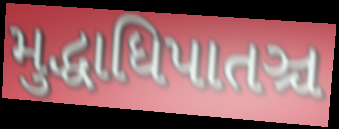
મુદ્ધાધિપાતઞ્ચ